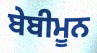
ਬੇਬੀਮੂਨ